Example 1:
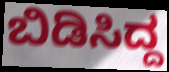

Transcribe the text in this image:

ಬಿಡಿಸಿದ್ದ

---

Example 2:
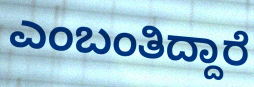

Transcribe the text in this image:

ಎಂಬಂತಿದ್ದಾರೆ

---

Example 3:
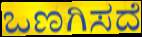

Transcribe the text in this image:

ಒಣಗಿಸದೆ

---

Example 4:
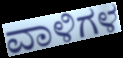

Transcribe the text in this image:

ವಾಳಿಗಳ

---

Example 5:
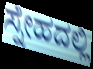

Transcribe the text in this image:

ಸ್ನೇಹದಲ್ಲಿ